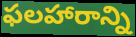
ఫలహారాన్ని